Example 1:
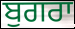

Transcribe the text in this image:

ਬੁਗਰਾ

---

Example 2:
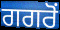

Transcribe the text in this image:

ਗਗਰੋਂ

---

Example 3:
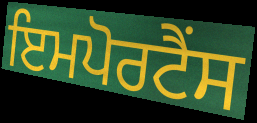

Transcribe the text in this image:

ਇਮਪੋਰਟੈਂਸ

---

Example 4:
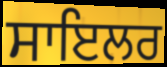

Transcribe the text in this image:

ਸਾਇਲਰ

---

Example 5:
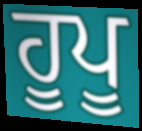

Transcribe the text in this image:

ਹੂਪੂ